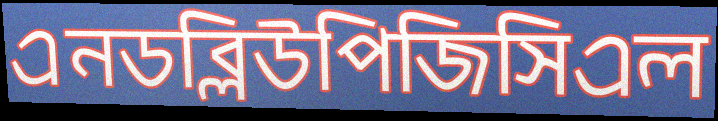
এনডব্লিউপিজিসিএল